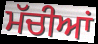
ਮੱਚੀਆਂ